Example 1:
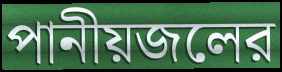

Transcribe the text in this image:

পানীয়জলের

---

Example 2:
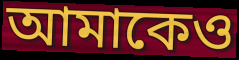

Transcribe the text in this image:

আমাকেও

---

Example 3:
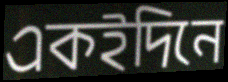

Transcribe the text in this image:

একইদিনে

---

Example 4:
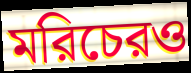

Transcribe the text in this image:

মরিচেরও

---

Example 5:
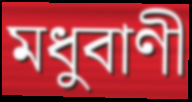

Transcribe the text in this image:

মধুবাণী